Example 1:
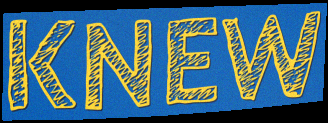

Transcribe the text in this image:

KNEW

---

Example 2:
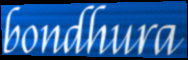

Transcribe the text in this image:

bondhura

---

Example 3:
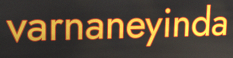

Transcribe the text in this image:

varnaneyinda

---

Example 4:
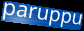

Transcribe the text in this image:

paruppu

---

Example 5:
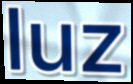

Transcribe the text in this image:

luz